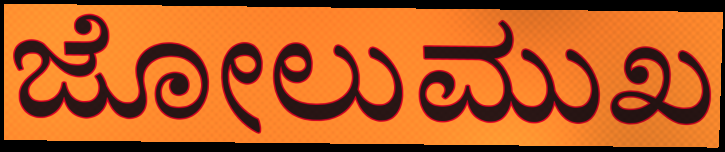
ಜೋಲುಮುಖ